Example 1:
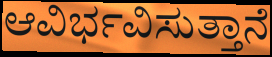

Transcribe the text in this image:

ಆವಿರ್ಭವಿಸುತ್ತಾನೆ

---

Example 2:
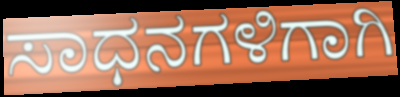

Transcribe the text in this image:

ಸಾಧನಗಳಿಗಾಗಿ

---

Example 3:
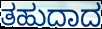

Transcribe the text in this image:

ತಹುದಾದ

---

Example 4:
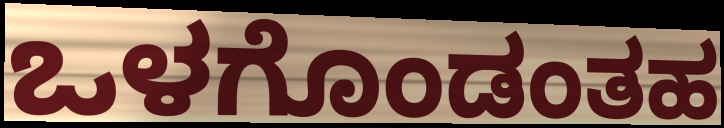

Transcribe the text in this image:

ಒಳಗೊಂಡಂತಹ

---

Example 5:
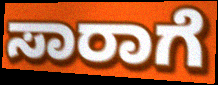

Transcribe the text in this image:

ಸಾರಾಗೆ